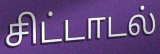
சிட்டாடல்